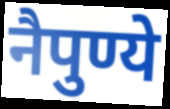
नैपुण्ये